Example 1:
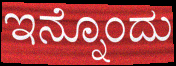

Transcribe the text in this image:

ಇನ್ನೊಂದು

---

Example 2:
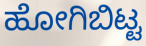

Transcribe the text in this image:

ಹೋಗಿಬಿಟ್ಟ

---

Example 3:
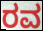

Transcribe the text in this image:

ರವ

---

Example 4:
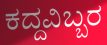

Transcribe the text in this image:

ಕದ್ದವಿಬ್ಬರ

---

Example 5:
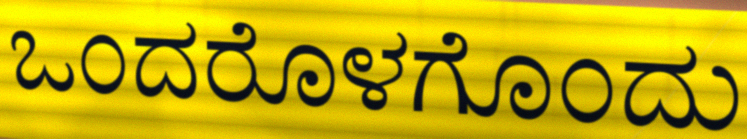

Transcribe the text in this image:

ಒಂದರೊಳಗೊಂದು